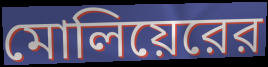
মোলিয়েরের